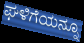
ಘಳಿಗೆಯನ್ನೂ